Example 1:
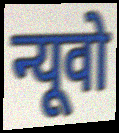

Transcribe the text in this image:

न्यूवो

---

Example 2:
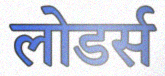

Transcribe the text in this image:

लोडर्स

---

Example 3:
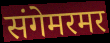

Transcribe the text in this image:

संगेमरमर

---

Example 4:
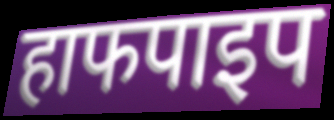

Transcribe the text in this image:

हाफपाइप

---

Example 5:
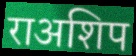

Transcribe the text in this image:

राअशिप